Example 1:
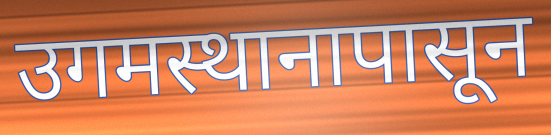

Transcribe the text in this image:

उगमस्थानापासून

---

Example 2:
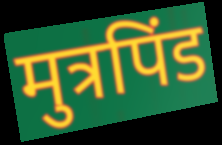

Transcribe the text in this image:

मुत्रपिंड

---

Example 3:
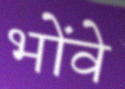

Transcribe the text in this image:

भोंवे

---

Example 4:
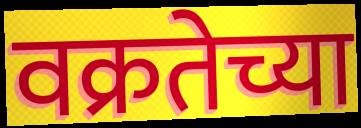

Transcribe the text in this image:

वक्रतेच्या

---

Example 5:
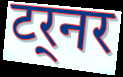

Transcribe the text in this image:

टर्नर